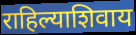
राहिल्याशिवाय